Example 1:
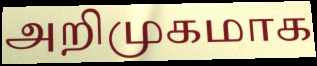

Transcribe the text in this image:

அறிமுகமாக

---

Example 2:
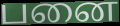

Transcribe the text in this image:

பனை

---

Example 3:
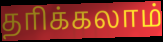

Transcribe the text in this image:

தரிக்கலாம்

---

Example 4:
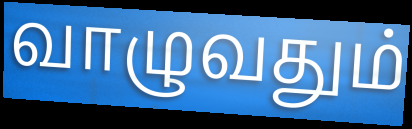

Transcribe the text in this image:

வாழுவதும்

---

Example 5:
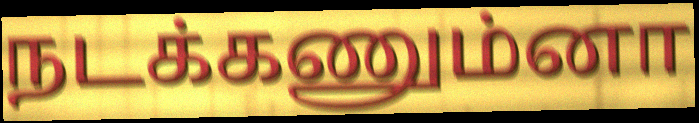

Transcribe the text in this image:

நடக்கணும்னா